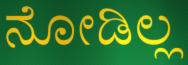
ನೋಡಿಲ್ಲ